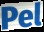
Pel